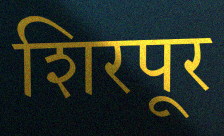
शिरपूर